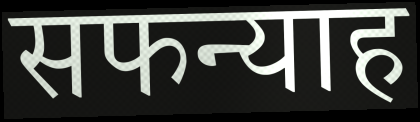
सफन्याह